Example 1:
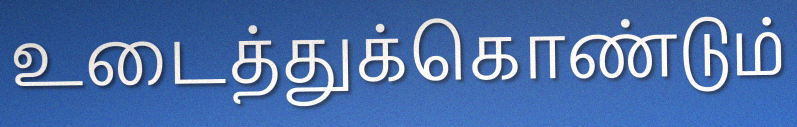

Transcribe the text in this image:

உடைத்துக்கொண்டும்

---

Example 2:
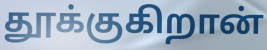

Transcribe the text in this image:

தூக்குகிறான்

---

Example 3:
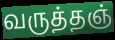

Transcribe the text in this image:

வருத்தஞ்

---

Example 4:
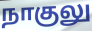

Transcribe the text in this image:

நாகுலு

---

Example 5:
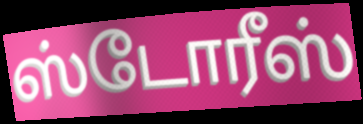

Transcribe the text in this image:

ஸ்டோரீஸ்